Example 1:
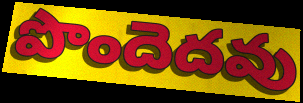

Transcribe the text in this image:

పొందెదవు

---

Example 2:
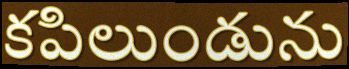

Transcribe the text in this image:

కపిలుండును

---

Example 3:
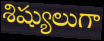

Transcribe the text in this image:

శిష్యులుగా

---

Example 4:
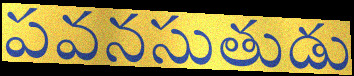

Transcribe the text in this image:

పవనసుతుడు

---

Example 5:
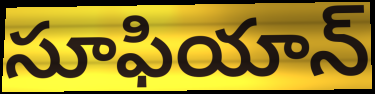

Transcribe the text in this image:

సూఫియాన్